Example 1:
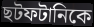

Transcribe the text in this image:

ছটফটানিকে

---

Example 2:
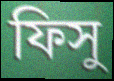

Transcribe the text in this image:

ফিসু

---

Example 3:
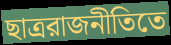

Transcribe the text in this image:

ছাত্ররাজনীতিতে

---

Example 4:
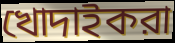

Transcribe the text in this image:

খোদাইকরা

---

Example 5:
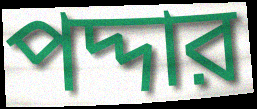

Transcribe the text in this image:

পদ্দার